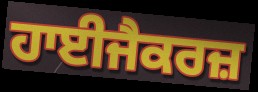
ਹਾਈਜੈਕਰਜ਼